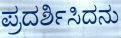
ಪ್ರದರ್ಶಿಸಿದನು